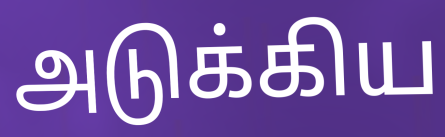
அடுக்கிய